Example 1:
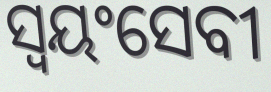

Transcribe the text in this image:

ସ୍ୱୟଂସେବୀ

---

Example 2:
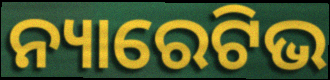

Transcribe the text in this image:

ନ୍ୟାରେଟିଭ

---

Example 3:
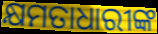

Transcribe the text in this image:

କ୍ଷମତାଧାରୀଙ୍କ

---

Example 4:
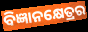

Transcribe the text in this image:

ବିଜ୍ଞାନକ୍ଷେତ୍ରର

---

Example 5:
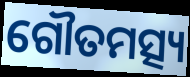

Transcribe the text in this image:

ଗୌତମତ୍ସ୍ୟ